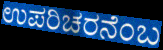
ಉಪರಿಚರನೆಂಬ